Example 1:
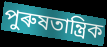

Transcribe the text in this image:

পুৰুষতান্ত্ৰিক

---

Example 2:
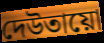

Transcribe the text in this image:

দেউতায়ো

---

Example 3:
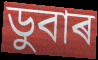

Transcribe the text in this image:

ডুবাৰ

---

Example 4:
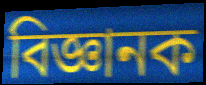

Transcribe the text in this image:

বিজ্ঞানক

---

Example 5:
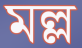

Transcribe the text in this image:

মল্ল